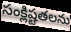
సంక్లిష్టతలను